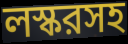
লস্করসহ